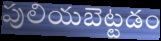
పులియబెట్టడం